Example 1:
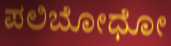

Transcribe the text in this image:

ಪಲಿಬೋಧೋ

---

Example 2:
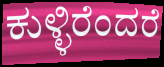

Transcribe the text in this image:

ಕುಳ್ಳಿರೆಂದರೆ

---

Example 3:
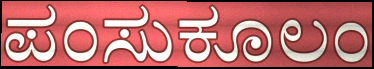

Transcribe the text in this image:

ಪಂಸುಕೂಲಂ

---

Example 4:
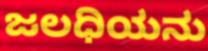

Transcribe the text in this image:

ಜಲಧಿಯನು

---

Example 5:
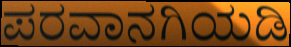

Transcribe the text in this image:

ಪರವಾನಗಿಯಡಿ